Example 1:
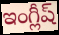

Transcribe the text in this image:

ఇంగ్లీష్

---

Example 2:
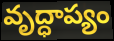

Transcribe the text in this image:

వృద్ధాప్యం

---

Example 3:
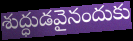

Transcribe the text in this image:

శుద్ధుడవైనందుకు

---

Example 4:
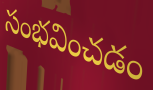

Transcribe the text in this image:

సంభవించడం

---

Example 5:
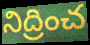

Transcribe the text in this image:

నిద్రించ